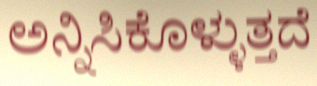
ಅನ್ನಿಸಿಕೊಳ್ಳುತ್ತದೆ